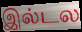
இல்டல